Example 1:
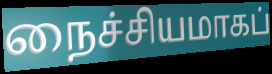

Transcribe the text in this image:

நைச்சியமாகப்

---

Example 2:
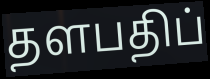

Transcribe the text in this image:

தளபதிப்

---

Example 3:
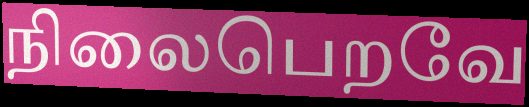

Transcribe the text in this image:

நிலைபெறவே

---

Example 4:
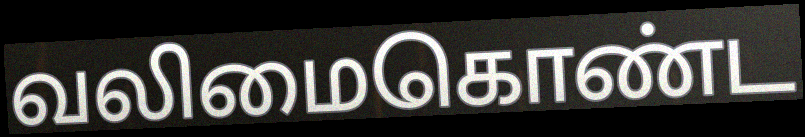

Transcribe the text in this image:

வலிமைகொண்ட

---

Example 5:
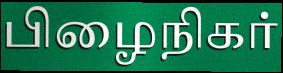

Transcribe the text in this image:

பிழைநிகர்